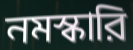
নমস্কারি